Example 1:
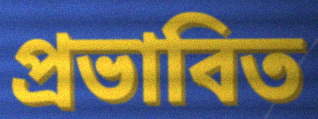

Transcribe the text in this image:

প্রভাবিত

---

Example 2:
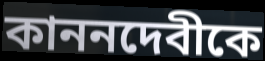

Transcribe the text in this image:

কাননদেবীকে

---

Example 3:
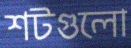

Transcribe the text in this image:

শটগুলো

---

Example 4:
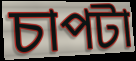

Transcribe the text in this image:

চাপটা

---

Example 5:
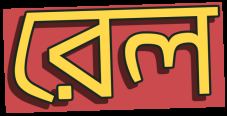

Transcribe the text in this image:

রেল